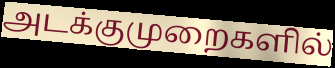
அடக்குமுறைகளில்